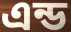
এন্ড